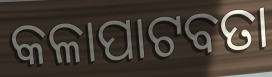
କଳାପାଟବତା